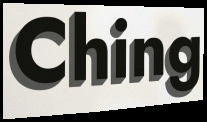
Ching